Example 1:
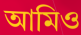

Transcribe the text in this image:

আমিও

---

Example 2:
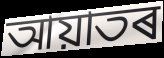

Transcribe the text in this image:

আয়াতৰ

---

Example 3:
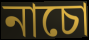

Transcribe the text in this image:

নাচো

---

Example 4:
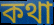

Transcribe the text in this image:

কথা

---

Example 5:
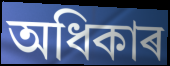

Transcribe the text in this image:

অধিকাৰ